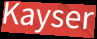
Kayser